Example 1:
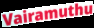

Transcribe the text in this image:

Vairamuthu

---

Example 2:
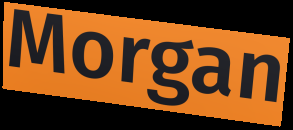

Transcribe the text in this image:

Morgan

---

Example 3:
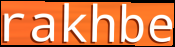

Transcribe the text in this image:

rakhbe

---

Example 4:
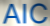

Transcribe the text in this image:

AIC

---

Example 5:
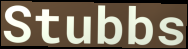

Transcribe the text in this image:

Stubbs